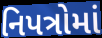
નિપત્રોમાં